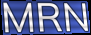
MRN